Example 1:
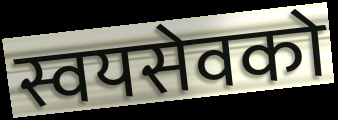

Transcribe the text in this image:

स्वयसेवको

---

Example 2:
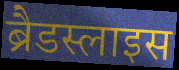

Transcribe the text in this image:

ब्रैडस्लाइस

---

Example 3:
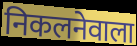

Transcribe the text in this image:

निकलनेवाला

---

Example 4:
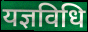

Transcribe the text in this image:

यज्ञविधि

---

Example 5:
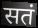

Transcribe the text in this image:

सतं